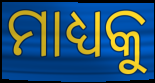
ମାଧ୍ୟକୁ